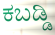
ಕಬಡ್ಡಿ